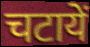
चटायें